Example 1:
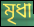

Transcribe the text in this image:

মৃধা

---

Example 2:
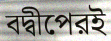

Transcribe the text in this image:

বদ্বীপেরই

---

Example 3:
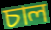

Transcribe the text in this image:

চাল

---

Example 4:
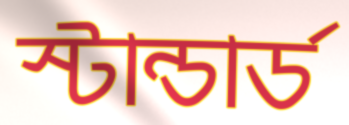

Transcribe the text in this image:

স্টান্ডার্ড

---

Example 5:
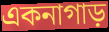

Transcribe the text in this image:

একনাগাড়